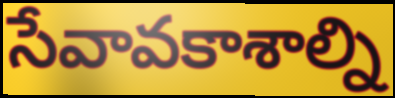
సేవావకాశాల్ని